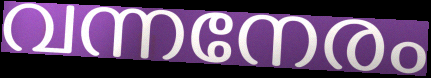
വന്നനേരം